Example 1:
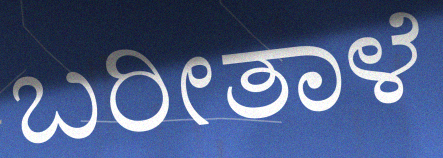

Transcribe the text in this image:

ಬರೀತಾಳೆ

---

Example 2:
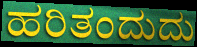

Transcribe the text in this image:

ಹರಿತಂದುದು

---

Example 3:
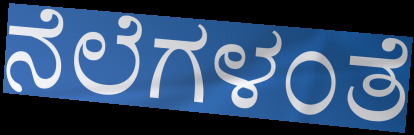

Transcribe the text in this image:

ನೆಲೆಗಳಂತೆ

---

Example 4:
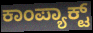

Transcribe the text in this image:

ಕಾಂಪ್ಯಾಕ್ಟ್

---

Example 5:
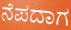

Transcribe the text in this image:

ನೆಪದಾಗ